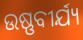
ଉଷ୍ଣବୀର୍ଯ୍ୟ